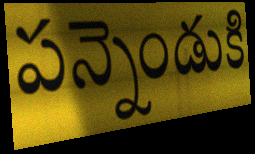
పన్నెండుకి